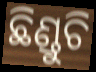
ଛିଣ୍ଡୁଚି